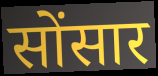
सोंसार